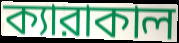
ক্যারাকাল